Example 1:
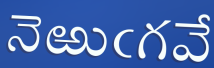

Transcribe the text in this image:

నెఱుఁగవే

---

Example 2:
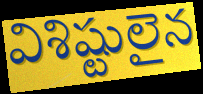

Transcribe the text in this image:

విశిష్టులైన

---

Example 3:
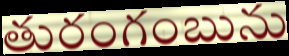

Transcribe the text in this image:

తురంగంబును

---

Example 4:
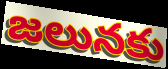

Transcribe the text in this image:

జలునకు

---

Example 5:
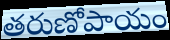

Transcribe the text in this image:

తరుణోపాయం